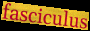
fasciculus